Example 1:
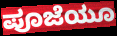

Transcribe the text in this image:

ಪೂಜೆಯೂ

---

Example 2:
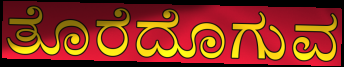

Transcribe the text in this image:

ತೊರೆದೊಗುವ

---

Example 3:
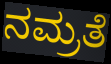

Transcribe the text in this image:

ನಮ್ರತೆ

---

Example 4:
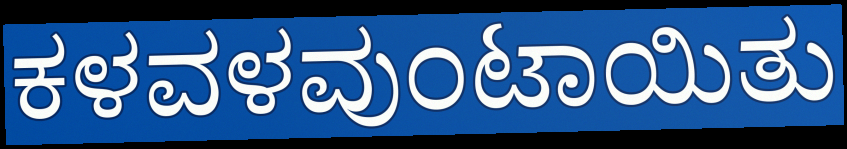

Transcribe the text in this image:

ಕಳವಳವುಂಟಾಯಿತು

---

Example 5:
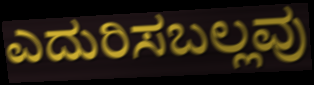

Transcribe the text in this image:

ಎದುರಿಸಬಲ್ಲವು